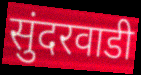
सुंदरवाडी